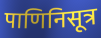
पाणिनिसूत्र